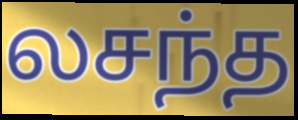
லசந்த